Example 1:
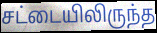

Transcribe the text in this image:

சட்டையிலிருந்த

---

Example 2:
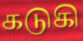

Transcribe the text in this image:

கடுகி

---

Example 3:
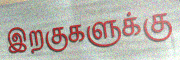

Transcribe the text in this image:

இறகுகளுக்கு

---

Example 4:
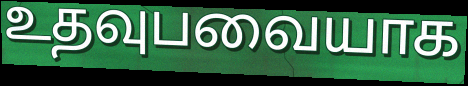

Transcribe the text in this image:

உதவுபவையாக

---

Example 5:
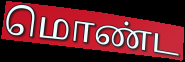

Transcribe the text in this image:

மொண்ட